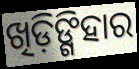
ଖିଡ଼ିଙ୍ଗିହାର